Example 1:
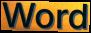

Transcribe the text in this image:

Word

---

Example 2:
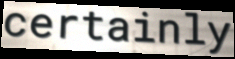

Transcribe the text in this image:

certainly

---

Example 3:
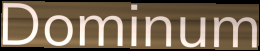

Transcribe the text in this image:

Dominum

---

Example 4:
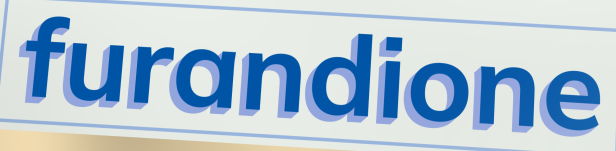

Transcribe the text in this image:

furandione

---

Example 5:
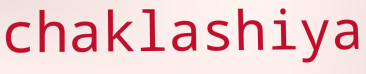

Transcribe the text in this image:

chaklashiya